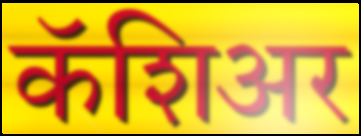
कॅशिअर